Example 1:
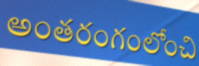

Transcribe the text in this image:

అంతరంగంలోంచి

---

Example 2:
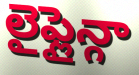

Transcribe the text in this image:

లైఫ్లైన్గా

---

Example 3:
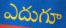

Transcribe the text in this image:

ఎదుగూ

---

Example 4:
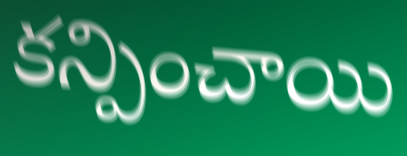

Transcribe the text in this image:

కన్పించాయి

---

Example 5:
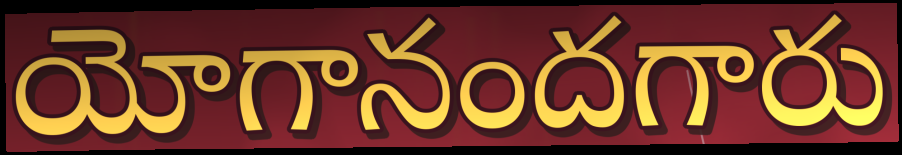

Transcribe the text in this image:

యోగానందగారు